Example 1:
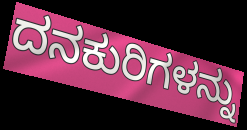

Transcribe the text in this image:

ದನಕುರಿಗಳನ್ನು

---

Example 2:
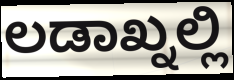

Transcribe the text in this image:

ಲಡಾಖ್ನಲ್ಲಿ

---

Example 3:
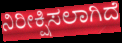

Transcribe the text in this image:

ನಿರೀಕ್ಷಿಸಲಾಗಿದೆ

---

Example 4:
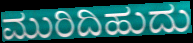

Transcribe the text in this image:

ಮುರಿದಿಹುದು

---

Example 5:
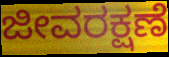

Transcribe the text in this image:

ಜೀವರಕ್ಷಣೆ